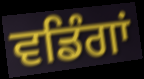
ਵਡਿੰਗਾਂ